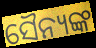
ସୈନ୍ୟଙ୍କ